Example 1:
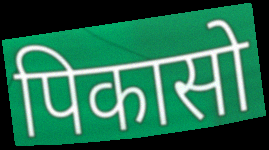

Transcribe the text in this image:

पिकासो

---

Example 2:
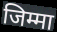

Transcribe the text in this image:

जिम्मा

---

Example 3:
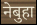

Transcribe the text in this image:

नेबुहा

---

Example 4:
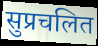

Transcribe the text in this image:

सुप्रचलित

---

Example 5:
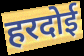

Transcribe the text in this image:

हरदोई